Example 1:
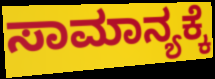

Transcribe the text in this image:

ಸಾಮಾನ್ಯಕ್ಕೆ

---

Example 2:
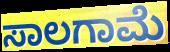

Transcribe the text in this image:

ಸಾಲಗಾಮೆ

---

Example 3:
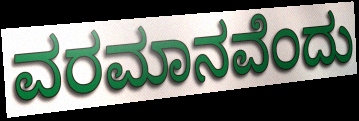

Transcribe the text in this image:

ವರಮಾನವೆಂದು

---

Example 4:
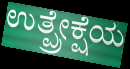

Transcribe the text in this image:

ಉತ್ಪ್ರೇಕ್ಷೆಯ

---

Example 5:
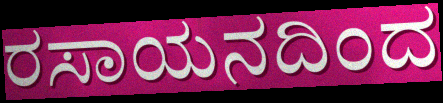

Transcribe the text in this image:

ರಸಾಯನದಿಂದ